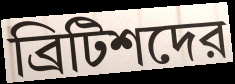
ব্রিটিশদের